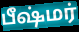
பீஷ்மர்